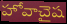
హోవాచైష